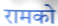
रामको